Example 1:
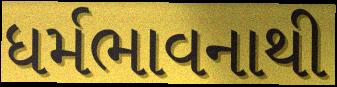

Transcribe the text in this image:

ધર્મભાવનાથી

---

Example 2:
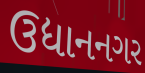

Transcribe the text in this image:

ઉદ્યાનનગર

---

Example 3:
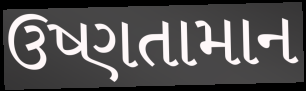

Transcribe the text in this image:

ઉષ્ણતામાન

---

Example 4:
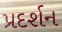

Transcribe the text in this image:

પ્રદર્શન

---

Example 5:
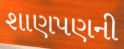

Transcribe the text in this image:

શાણપણની